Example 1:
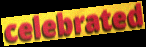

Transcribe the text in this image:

celebrated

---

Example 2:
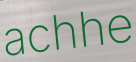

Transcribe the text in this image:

achhe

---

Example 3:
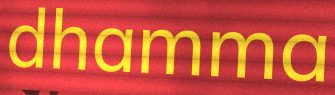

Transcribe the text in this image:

dhamma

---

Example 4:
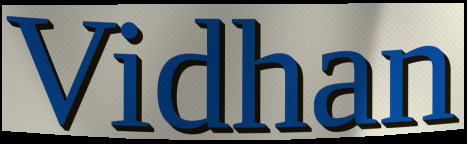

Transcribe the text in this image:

Vidhan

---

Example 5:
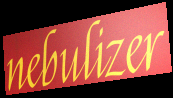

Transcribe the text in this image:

nebulizer